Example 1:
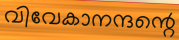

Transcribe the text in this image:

വിവേകാനന്ദന്റെ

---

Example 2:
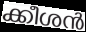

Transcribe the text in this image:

ക്കീശൻ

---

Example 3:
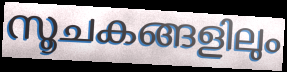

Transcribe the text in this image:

സൂചകങ്ങളിലും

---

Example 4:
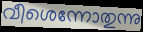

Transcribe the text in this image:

വീശെന്നോതുന്നു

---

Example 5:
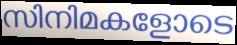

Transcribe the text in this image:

സിനിമകളോടെ